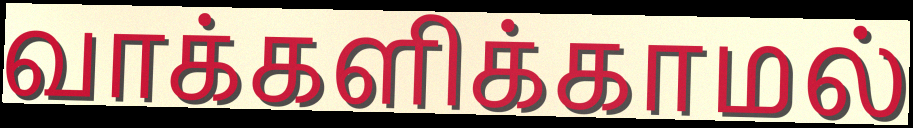
வாக்களிக்காமல்